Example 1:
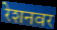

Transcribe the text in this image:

रेशनवर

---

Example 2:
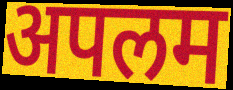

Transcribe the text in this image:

अपलम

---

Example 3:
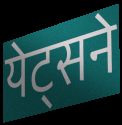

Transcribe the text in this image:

येट्सने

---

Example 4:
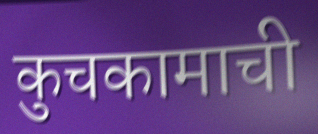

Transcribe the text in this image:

कुचकामाची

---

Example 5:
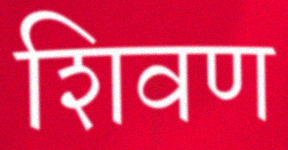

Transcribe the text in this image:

शिवण